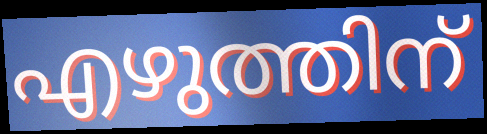
എഴുത്തിന്